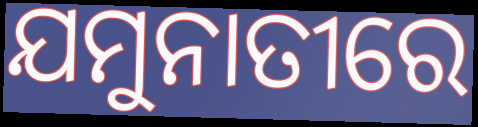
ଯମୁନାତୀରେ